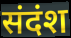
संदंश